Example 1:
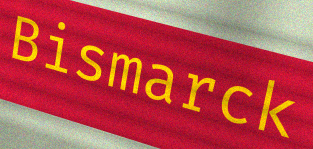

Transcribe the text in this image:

Bismarck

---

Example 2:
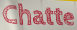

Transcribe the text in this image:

Chatte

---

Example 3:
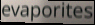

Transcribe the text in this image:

evaporites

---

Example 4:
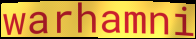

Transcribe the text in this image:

warhamni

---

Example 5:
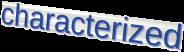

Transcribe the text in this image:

characterized